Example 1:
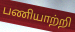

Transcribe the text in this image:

பணியாற்றி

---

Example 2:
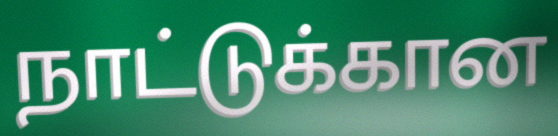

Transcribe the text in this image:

நாட்டுக்கான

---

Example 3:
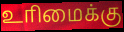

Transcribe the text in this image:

உரிமைக்கு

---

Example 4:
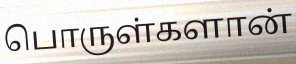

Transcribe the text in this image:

பொருள்களான்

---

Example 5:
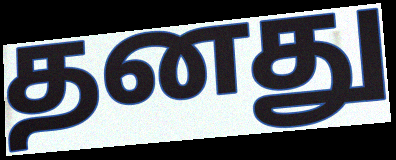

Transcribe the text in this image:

தனது